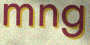
mng